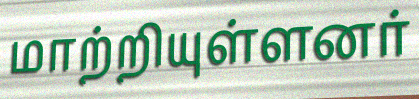
மாற்றியுள்ளனர்